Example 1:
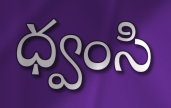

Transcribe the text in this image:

ధ్వంసి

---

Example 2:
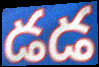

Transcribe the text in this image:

డడ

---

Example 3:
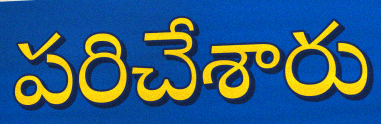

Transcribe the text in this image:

పరిచేశారు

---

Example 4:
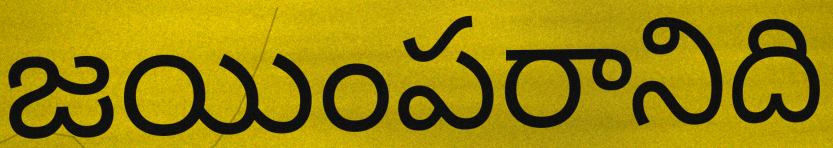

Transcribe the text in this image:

జయింపరానిది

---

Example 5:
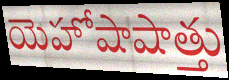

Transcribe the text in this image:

యెహోషాషాత్తు